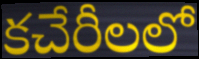
కచేరీలలో